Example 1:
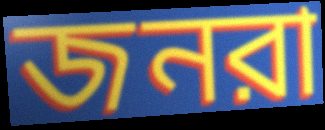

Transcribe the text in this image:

জনরা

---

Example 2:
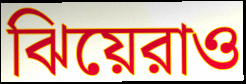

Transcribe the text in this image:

ঝিয়েরাও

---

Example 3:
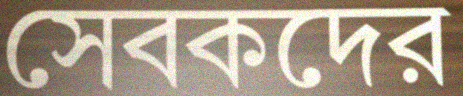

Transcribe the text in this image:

সেবকদের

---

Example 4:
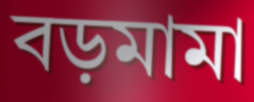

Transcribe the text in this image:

বড়মামা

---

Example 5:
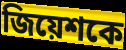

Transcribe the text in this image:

জিয়েশকে